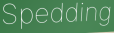
Spedding